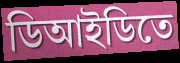
ডিআইডিতে